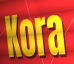
Kora